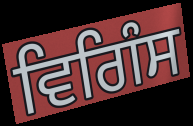
ਵਿਗਿੰਸ